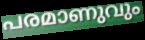
പരമാണുവും